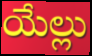
యేల్లు